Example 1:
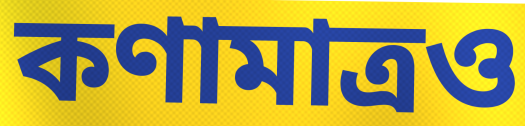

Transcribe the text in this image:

কণামাত্রও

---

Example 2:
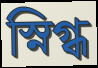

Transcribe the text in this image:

স্নিগ্ধ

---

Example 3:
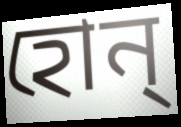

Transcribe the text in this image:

হোন্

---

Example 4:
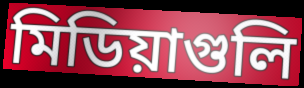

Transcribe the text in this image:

মিডিয়াগুলি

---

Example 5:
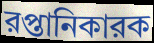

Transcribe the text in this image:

রপ্তানিকারক